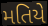
મતિયે